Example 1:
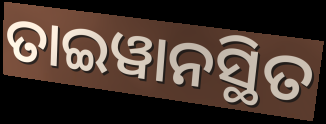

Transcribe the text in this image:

ତାଇୱାନସ୍ଥିତ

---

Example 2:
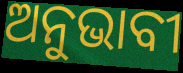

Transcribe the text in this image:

ଅନୁଭାବୀ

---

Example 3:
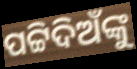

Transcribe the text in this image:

ପଟ୍ଟିଦିଅଁଙ୍କୁ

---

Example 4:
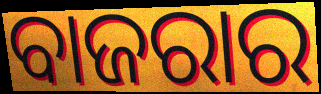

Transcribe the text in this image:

ବାଜରାର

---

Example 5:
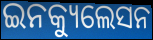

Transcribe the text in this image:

ଇନକ୍ୟୁଲେସନ